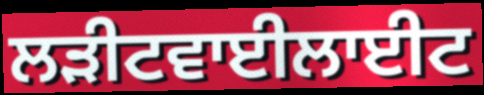
ਲੜੀਟਵਾਈਲਾਈਟ